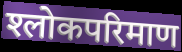
श्लोकपरिमाण